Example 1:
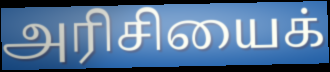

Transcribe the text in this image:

அரிசியைக்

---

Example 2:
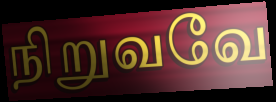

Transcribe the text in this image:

நிறுவவே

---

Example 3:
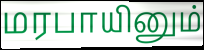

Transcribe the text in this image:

மரபாயினும்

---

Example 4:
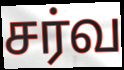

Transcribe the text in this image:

சர்வ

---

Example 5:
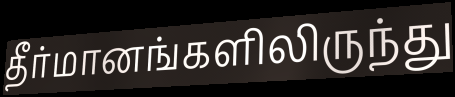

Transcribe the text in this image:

தீர்மானங்களிலிருந்து